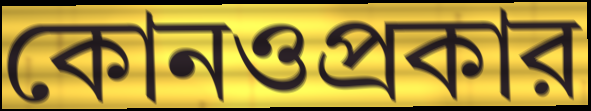
কোনওপ্রকার